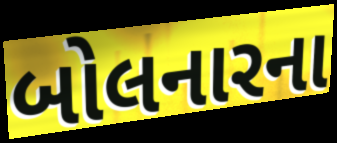
બોલનારના